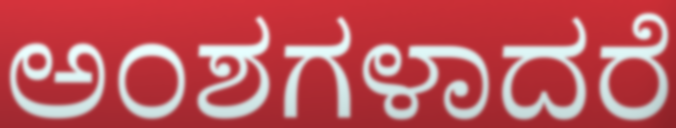
ಅಂಶಗಳಾದರೆ